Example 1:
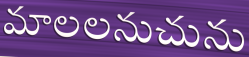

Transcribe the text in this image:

మాలలనుచును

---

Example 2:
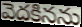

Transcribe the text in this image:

వెదకినను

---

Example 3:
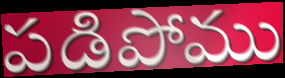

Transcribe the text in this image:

పడిపోము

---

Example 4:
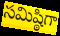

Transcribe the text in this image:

సమిష్ఠిగా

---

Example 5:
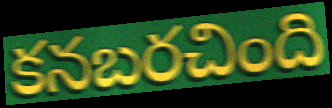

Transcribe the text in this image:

కనబరచింది